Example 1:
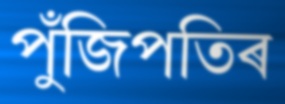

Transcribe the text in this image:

পুঁজিপতিৰ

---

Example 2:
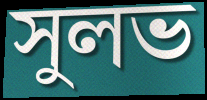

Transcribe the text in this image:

সুলভ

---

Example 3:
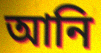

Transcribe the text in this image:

আনি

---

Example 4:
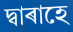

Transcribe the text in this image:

দ্বাৰাহে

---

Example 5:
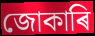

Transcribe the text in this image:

জোকাৰি